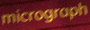
micrograph